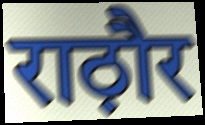
राठ़ौर